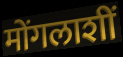
मोंगलाशीं